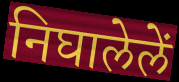
निघालेलें